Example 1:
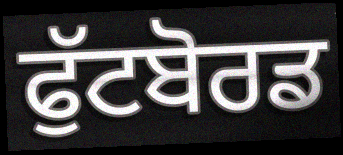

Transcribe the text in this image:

ਫੁੱਟਬੋਰਡ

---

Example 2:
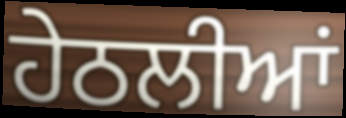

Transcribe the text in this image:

ਹੇਠਲੀਆਂ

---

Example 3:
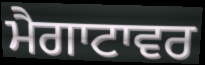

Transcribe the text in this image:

ਮੈਗਾਟਾਵਰ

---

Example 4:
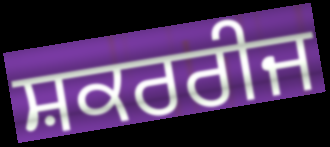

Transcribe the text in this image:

ਸ਼ਕਰਰੀਜ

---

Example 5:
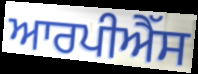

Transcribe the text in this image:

ਆਰਪੀਐੱਸ